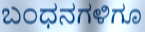
ಬಂಧನಗಳಿಗೂ